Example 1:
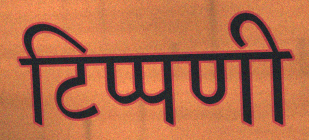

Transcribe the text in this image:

टिप्पणी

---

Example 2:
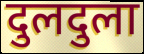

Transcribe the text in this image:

दुलदुला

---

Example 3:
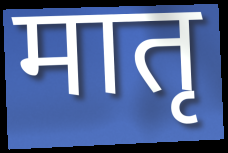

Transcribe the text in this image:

मातृ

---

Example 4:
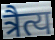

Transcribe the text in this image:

त्रैत्य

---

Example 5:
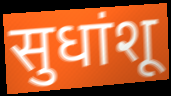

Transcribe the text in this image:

सुधांशू